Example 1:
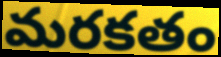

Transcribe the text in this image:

మరకతం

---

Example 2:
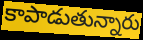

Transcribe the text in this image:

కాపాడుతున్నారు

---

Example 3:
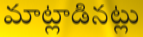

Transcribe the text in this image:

మాట్లాడినట్లు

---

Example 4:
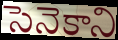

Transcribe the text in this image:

సెనెకాని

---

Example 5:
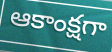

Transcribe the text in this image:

ఆకాంక్షగా